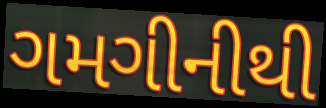
ગમગીનીથી